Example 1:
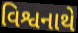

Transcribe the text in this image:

વિશ્વનાથે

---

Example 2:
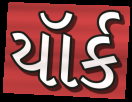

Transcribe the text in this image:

યૉર્ક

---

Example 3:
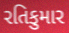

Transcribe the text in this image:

રતિકુમાર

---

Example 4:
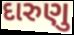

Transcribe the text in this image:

દારુણુ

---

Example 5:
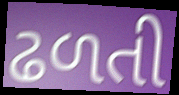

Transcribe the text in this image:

ઢળતી